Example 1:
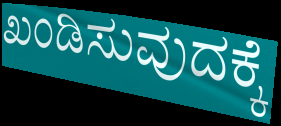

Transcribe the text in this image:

ಖಂಡಿಸುವುದಕ್ಕೆ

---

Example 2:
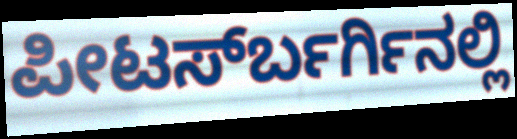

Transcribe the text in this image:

ಪೀಟರ್ಸ್‍ಬರ್ಗಿನಲ್ಲಿ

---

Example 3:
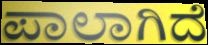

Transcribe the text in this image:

ಪಾಲಾಗಿದೆ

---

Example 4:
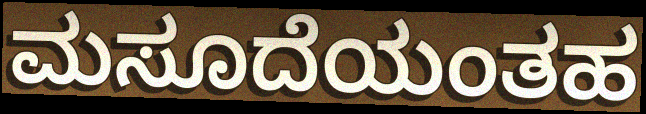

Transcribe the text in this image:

ಮಸೂದೆಯಂತಹ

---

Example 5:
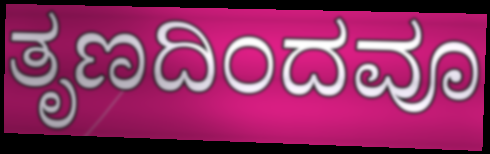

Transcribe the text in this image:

ತೃಣದಿಂದವೂ